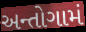
અન્તોગામં